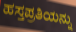
ಹಸ್ತಪ್ರತಿಯನ್ನು